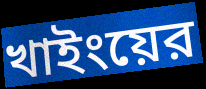
খাইংয়ের